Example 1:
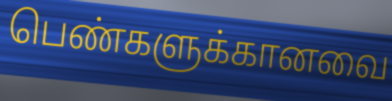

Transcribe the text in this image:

பெண்களுக்கானவை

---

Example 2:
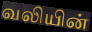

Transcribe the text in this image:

வலியின்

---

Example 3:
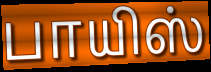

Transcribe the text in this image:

பாயிஸ்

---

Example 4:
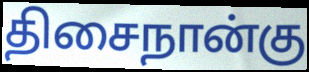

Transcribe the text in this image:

திசைநான்கு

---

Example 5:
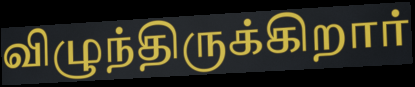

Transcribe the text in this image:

விழுந்திருக்கிறார்